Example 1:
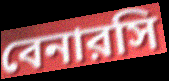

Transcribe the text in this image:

বেনারসি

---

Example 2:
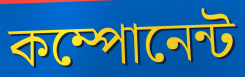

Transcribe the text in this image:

কম্পোনেন্ট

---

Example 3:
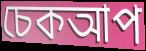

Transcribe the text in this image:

চেকআপ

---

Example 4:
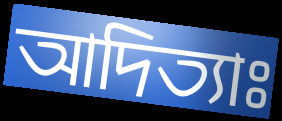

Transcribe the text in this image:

আদিত্যাঃ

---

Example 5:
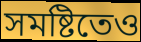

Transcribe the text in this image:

সমষ্টিতেও